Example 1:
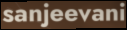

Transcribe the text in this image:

sanjeevani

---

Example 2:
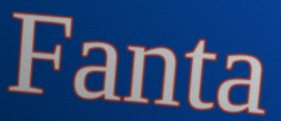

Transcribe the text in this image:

Fanta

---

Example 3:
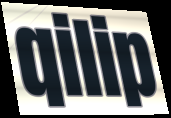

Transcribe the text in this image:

qilip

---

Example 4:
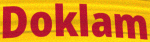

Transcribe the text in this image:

Doklam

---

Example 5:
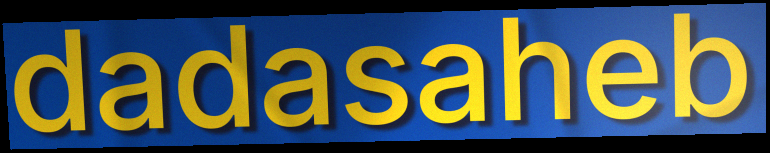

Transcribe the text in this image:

dadasaheb